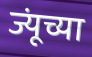
ज्यूंच्या